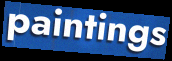
paintings